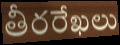
తీరరేఖలు